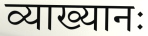
व्याख्यानः